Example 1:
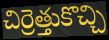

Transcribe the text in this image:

చిర్రెత్తుకొచ్చి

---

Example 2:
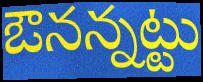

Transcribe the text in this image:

ఔనన్నట్టు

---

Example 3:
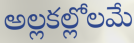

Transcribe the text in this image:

అల్లకల్లోలమే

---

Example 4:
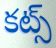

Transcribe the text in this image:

కట్స్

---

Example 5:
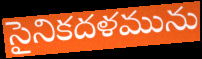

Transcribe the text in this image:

సైనికదళమును